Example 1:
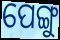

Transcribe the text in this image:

ପେଙ୍ଗୁ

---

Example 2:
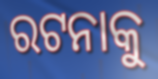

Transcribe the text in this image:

ରଟନାକୁ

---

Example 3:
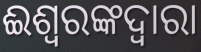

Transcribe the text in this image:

ଈଶ୍ୱରଙ୍କଦ୍ୱାରା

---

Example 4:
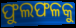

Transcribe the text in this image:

ଫୁଲଫଳକୁ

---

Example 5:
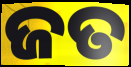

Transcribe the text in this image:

ଜତ